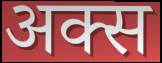
अक्स